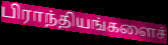
பிராந்தியங்களைச்